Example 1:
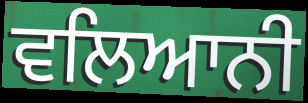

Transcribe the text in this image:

ਵਲਿਆਨੀ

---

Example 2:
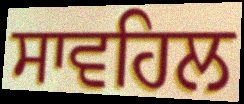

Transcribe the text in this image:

ਸਾਵਹਿਲ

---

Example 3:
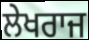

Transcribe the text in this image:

ਲੇਖਰਾਜ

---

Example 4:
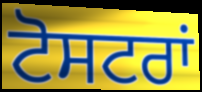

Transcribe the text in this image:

ਟੋਸਟਰਾਂ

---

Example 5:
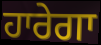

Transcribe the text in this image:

ਹਾਰੇਗਾ